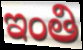
ఇంతి